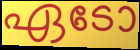
ഏടോ